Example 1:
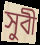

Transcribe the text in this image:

সুবী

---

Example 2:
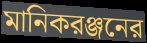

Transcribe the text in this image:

মানিকরঞ্জনের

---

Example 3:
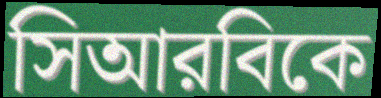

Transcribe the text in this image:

সিআরবিকে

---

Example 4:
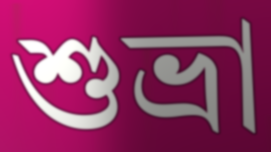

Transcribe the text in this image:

শুভ্রা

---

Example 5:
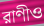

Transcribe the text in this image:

রাণীও